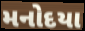
મનોદયા